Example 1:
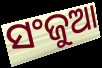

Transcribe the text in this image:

ସଂଜୁଆ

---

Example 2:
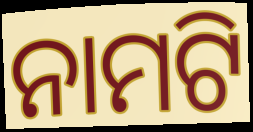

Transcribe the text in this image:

ନାମଟି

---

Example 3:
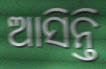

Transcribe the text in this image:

ଆସିନ୍ତି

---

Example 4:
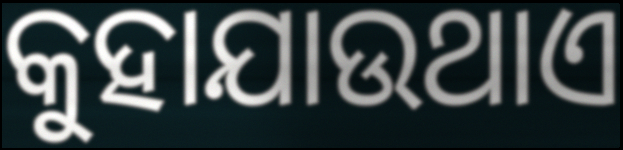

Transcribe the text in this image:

କୁହାଯାଉଥାଏ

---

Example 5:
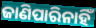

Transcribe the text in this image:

ଜାଣିପାରିନାହିଁ